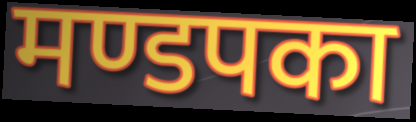
मण्डपका